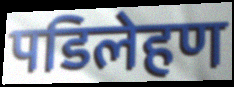
पडिलेहण